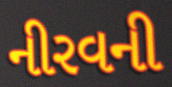
નીરવની